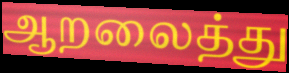
ஆறலைத்து